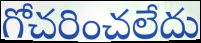
గోచరించలేదు